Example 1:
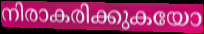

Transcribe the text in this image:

നിരാകരിക്കുകയോ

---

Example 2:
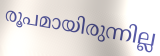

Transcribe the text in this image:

രൂപമായിരുന്നില്ല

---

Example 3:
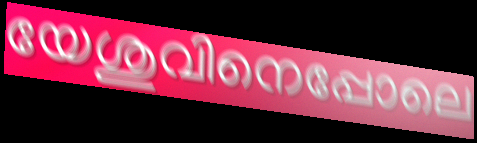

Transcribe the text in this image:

യേശുവിനെപ്പോലെ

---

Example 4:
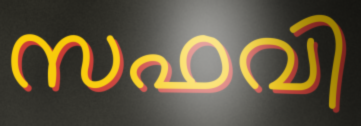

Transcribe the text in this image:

സഫവി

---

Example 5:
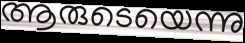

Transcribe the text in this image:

ആരുടെയെന്നു